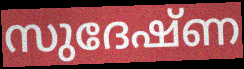
സുദേഷ്ണ